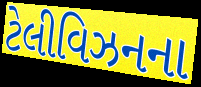
ટેલીવિઝનના